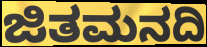
ಜಿತಮನದಿ